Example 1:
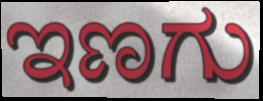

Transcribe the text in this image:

ಇಣಗು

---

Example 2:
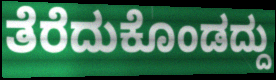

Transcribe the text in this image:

ತೆರೆದುಕೊಂಡದ್ದು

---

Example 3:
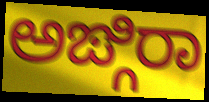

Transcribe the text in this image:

ಅಙ್ಗಿರಾ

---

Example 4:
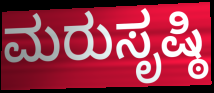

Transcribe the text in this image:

ಮರುಸೃಷ್ಠಿ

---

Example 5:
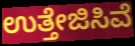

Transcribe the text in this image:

ಉತ್ತೇಜಿಸಿವೆ